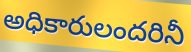
అధికారులందరినీ